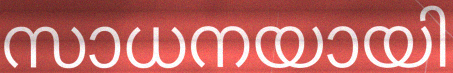
സാധനയായി